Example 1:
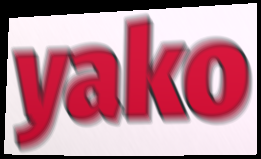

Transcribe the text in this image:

yako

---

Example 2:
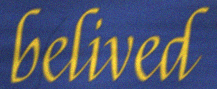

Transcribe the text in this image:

belived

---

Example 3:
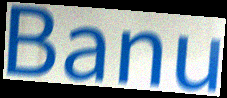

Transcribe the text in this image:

Banu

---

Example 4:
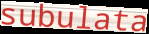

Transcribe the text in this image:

subulata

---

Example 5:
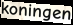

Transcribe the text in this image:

koningen